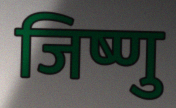
जिष्णु